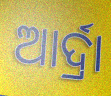
ଆର୍ଦ୍ରା